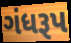
ગંધરૂપ